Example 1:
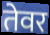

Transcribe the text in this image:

तेवर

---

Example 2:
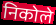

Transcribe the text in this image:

निकोले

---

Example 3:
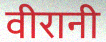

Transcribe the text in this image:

वीरानी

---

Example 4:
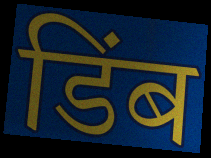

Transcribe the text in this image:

डिंब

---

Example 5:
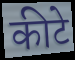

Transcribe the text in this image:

कीटे